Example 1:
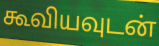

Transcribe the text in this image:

கூவியவுடன்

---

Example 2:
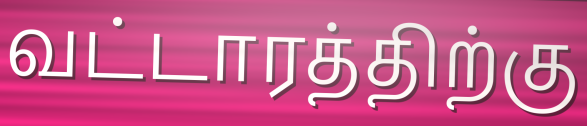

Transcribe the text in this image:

வட்டாரத்திற்கு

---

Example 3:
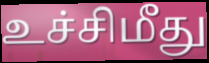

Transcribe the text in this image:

உச்சிமீது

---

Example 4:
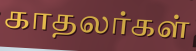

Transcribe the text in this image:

காதலர்கள்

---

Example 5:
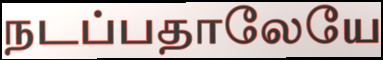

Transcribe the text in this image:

நடப்பதாலேயே